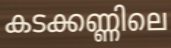
കടക്കണ്ണിലെ